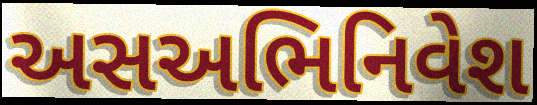
અસઅભિનિવેશ